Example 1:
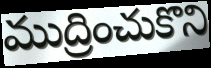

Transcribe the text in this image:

ముద్రించుకొని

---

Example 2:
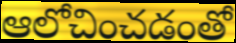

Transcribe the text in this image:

ఆలోచించడంతో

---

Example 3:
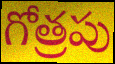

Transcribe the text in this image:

గోత్రపు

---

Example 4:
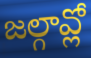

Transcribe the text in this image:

జల్గావ్లో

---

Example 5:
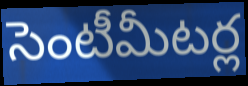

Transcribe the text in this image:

సెంటీమీటర్ల